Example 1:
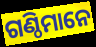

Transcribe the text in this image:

ଗଣ୍ଠିମାନେ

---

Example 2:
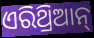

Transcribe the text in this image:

ଏରିଥ୍ରିଆନ୍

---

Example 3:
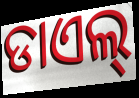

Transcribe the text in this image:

ଡାଏଲ୍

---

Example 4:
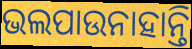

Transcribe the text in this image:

ଭଲପାଉନାହାନ୍ତି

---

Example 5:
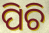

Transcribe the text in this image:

ପିଚି